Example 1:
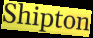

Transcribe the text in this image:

Shipton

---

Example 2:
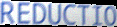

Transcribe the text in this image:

REDUCTIO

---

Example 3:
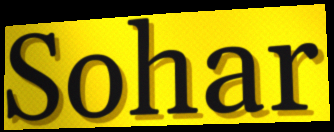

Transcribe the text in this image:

Sohar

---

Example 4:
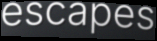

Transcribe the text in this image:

escapes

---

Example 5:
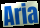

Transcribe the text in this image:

Aria